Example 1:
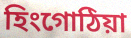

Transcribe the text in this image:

হিংগোঠিয়া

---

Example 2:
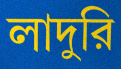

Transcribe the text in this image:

লাদুরি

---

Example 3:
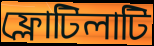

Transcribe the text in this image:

ফ্লোটিলাটি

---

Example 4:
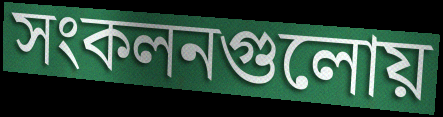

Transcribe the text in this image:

সংকলনগুলোয়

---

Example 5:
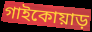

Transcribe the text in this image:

গাইকোয়াড়